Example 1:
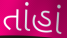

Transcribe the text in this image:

તાંહાં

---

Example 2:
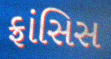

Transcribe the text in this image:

ફ્રાંસિસ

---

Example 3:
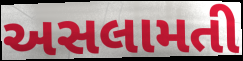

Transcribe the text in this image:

અસલામતી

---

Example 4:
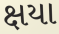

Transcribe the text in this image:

ક્ષયા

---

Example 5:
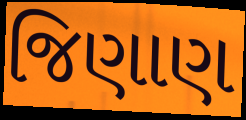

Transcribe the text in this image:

જિણાણ